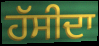
ਹੱਸੀਦਾ